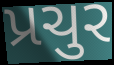
પ્રચુર